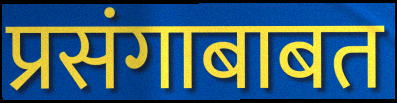
प्रसंगाबाबत